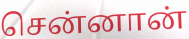
சென்னான்